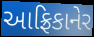
આફ્રિકાનેર